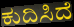
ಕುದಿಸಿದೆ